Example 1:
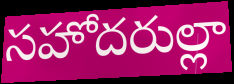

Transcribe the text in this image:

సహోదరుల్లా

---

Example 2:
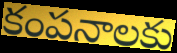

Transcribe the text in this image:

కంపనాలకు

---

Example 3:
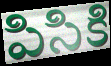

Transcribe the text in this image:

పిసికి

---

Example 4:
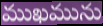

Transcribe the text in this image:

ముఖమును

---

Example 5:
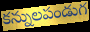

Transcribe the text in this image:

కన్నులపండుగ